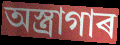
অস্ত্ৰাগাৰ